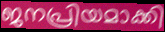
ജനപ്രിയമാക്കി